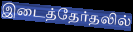
இடைத்தேர்தலில்